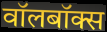
वॉलबॉक्स